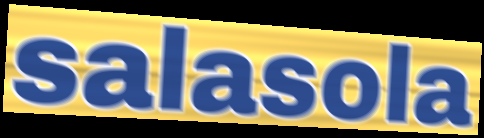
salasola